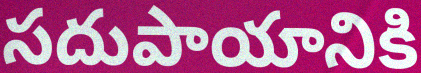
సదుపాయానికి